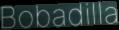
Bobadilla